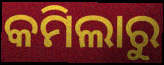
କମିଲାରୁ